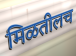
मिळतीलच